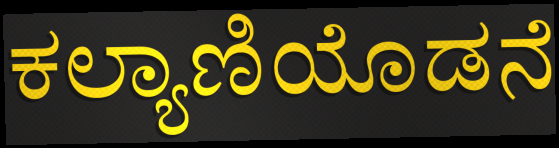
ಕಲ್ಯಾಣಿಯೊಡನೆ